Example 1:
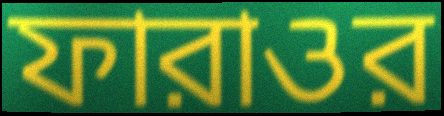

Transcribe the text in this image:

ফারাওর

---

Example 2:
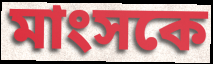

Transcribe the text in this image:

মাংসকে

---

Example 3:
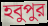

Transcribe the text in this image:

হবুপুর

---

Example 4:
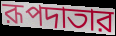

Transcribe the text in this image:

রূপদাতার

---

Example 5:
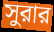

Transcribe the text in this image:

সুরার